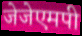
जेजेएमपी